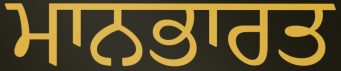
ਮਾਨਭਾਰਤ